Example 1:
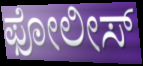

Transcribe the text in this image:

ಫೋಲೀಸ್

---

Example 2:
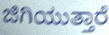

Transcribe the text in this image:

ಜಿಗಿಯುತ್ತಾರೆ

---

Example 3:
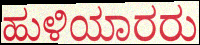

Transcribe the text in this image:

ಹುಳಿಯಾರರು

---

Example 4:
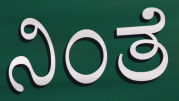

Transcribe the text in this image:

ನಿಂತೆ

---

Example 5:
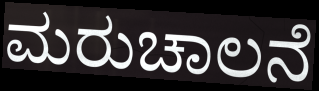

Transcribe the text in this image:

ಮರುಚಾಲನೆ